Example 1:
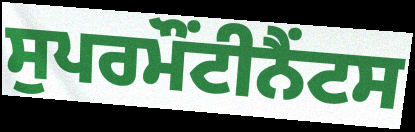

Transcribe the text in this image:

ਸੁਪਰਮੌਂਟੀਨੈਂਟਸ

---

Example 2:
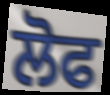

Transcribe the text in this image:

ਲੋਫ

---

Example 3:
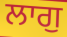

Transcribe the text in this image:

ਲਾਗੁ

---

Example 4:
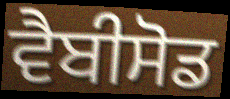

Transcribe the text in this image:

ਵੈਬੀਸੋਡ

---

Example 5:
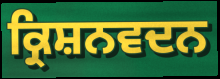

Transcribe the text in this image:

ਕ੍ਰਿਸ਼ਨਵਦਨ